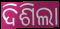
ଦିଶିଲା